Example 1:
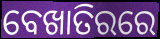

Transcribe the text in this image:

ବେଖାତିରରେ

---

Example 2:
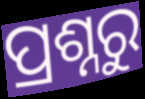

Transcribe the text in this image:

ପ୍ରଶ୍ନରୁ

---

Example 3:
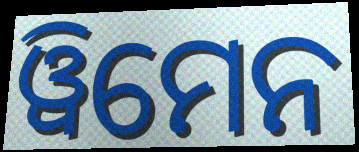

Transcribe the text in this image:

ୱିମେନ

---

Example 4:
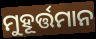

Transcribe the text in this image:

ମୁହୂର୍ତ୍ତମାନ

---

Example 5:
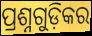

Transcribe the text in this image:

ପ୍ରଶ୍ନଗୁଡ଼ିକର